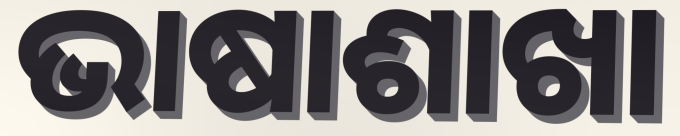
ଭାଷାଶାଖା